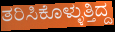
ತರಿಸಿಕೊಳ್ಳುತ್ತಿದ್ದ